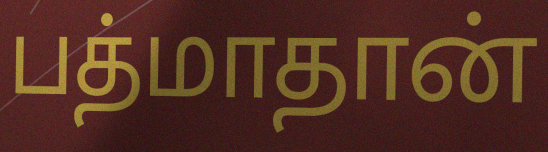
பத்மாதான்